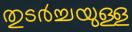
തുടർച്ചയുള്ള